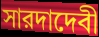
সারদাদেবী